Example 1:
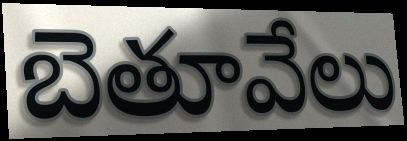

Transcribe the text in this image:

బెతూవేలు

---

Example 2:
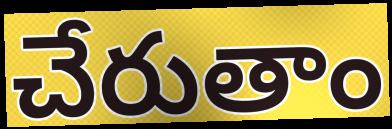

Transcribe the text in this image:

చేరుతాం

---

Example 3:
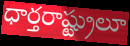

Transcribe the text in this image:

ధార్తరాష్ట్రులూ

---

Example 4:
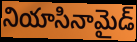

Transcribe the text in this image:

నియాసినామైడ్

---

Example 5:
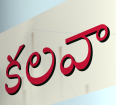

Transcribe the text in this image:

కలవా